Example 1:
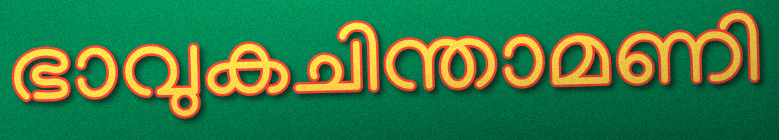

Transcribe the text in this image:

ഭാവുകചിന്താമണി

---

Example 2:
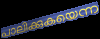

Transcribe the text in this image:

പാലിക്കുകയെന്ന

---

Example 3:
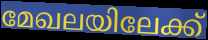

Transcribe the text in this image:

മേഖലയിലേക്ക്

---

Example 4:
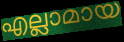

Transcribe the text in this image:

എല്ലാമായ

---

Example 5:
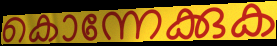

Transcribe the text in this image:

കൊന്നേക്കുക